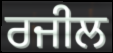
ਰਜੀਲ